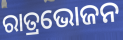
ରାତ୍ରଭୋଜନ